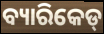
ବ୍ୟାରିକେଡ୍